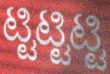
ಟ್ಟಿಟ್ಟಿಟ್ಟಿ